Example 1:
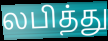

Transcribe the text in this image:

லபித்து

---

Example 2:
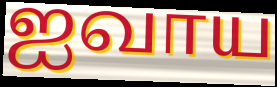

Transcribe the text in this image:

ஐவாய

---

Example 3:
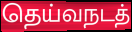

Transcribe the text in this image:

தெய்வநடத்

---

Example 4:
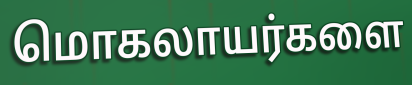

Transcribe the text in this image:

மொகலாயர்களை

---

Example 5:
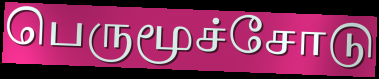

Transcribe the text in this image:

பெருமூச்சோடு